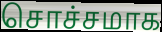
சொச்சமாக